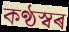
কণ্ঠস্বৰ